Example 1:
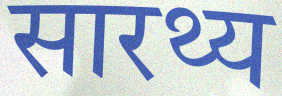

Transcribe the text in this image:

सारथ्य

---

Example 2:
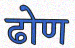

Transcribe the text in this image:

ढोण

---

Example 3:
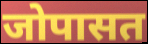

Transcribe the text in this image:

जोपासत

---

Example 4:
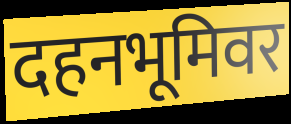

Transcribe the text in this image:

दहनभूमिवर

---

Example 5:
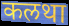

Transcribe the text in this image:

कलथा